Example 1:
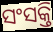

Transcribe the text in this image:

ସଂସକ୍ତି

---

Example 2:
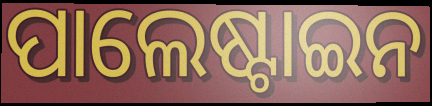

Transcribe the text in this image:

ପାଲେଷ୍ଟାଇନ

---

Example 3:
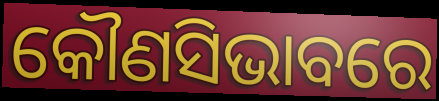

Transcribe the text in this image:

କୌଣସିଭାବରେ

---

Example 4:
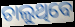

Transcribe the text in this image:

ଚାଲୁଥିବେ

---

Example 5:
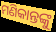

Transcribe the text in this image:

ମଣିକାନ୍ତଙ୍କୁ